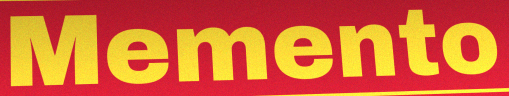
Memento